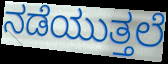
ನಡೆಯುತ್ತಲೆ